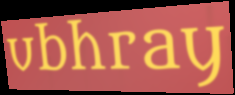
ubhray